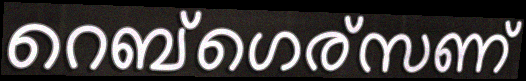
റെബ്ഗെര്സണ്